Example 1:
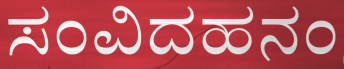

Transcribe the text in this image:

ಸಂವಿದಹನಂ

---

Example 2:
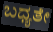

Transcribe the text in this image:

ಬಧ್ಯತೇ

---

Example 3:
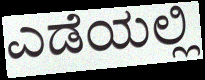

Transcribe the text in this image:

ಎಡೆಯಲ್ಲಿ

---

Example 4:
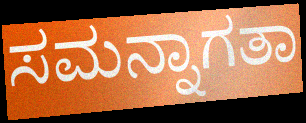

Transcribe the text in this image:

ಸಮನ್ನಾಗತಾ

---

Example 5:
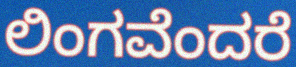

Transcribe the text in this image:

ಲಿಂಗವೆಂದರೆ